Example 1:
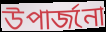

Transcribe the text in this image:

উপাৰ্জনো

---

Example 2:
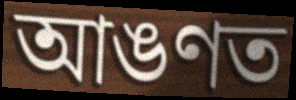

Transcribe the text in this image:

আঙণত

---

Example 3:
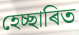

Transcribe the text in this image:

হেচ্ছাৰিত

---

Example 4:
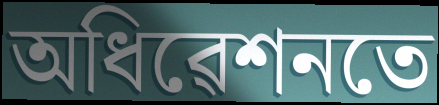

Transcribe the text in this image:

অধিৱেশনতে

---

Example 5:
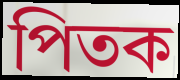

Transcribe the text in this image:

পিতক